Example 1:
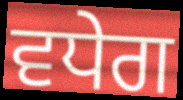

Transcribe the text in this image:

ਵਧੇਗ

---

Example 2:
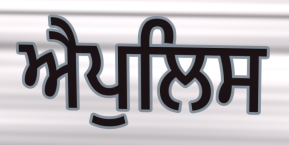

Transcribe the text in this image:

ਐਪੁਲਿਸ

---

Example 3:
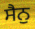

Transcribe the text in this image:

ਸੈਨੁ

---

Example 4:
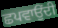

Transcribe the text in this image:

ਛਪਵਾਉਂਦੀ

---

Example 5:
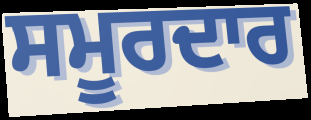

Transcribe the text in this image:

ਸਮੂਰਦਾਰ